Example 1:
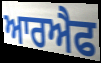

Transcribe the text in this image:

ਆਰਐਫ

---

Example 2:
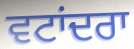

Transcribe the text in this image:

ਵਟਾਂਦਰਾ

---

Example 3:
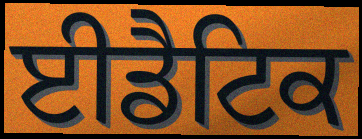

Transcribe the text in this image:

ਈਡੈਟਿਕ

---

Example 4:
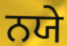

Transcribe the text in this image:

ਨਯੇ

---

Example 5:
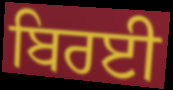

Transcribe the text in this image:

ਬਿਰਈ